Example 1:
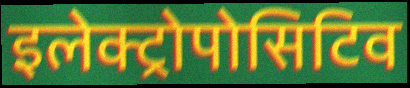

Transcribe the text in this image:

इलेक्ट्रोपोसिटिव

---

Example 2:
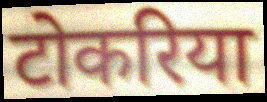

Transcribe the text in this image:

टोकरिया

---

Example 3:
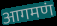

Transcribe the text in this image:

आगमणं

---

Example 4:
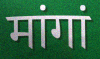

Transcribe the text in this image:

मांगां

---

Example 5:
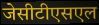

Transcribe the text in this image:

जेसीटीएसएल